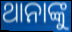
ଥାନାଙ୍କୁ